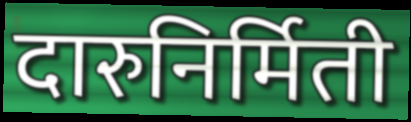
दारुनिर्मिती